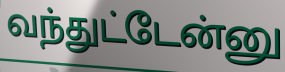
வந்துட்டேன்னு